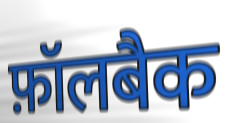
फ़ॉलबैक